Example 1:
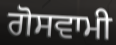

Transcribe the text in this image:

ਗੋਸਵਾਮੀ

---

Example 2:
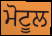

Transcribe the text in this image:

ਮੋਟੂਲ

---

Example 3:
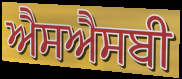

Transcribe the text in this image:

ਐਸਐਸਬੀ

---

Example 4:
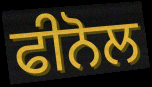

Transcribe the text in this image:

ਫੀਨੋਲ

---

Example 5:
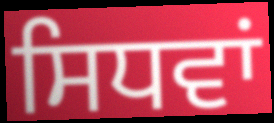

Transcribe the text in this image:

ਸਿਧਵਾਂ